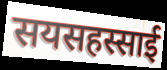
सयसहस्साई